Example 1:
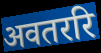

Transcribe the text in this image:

अवतररि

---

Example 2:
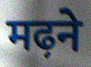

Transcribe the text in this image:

मढ़ने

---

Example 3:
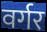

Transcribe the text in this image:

वर्गर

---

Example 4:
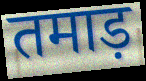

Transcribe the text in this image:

तमाड़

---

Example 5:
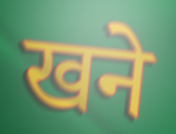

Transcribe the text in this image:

खने